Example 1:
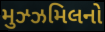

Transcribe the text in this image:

મુઝ્ઝમિલનો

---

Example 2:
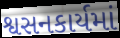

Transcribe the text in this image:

શ્વસનકાર્યમાં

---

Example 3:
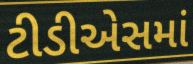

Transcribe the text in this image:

ટીડીએસમાં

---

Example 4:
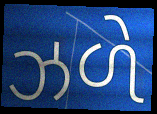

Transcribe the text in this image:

ઝળે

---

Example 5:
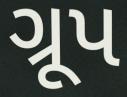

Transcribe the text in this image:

ગ્રૂપ